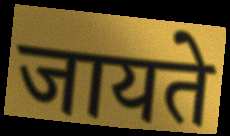
जायते